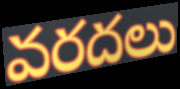
వరదలు